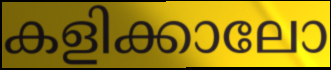
കളിക്കാലോ